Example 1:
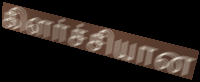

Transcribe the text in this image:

கிளர்ச்சியான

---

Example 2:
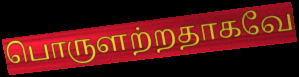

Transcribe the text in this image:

பொருளற்றதாகவே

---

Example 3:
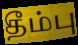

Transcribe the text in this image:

தீம்பு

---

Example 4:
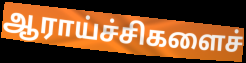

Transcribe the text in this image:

ஆராய்ச்சிகளைச்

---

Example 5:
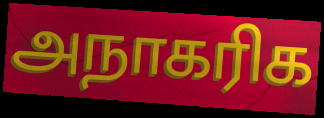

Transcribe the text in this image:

அநாகரிக